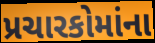
પ્રચારકોમાંના